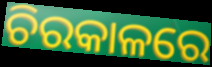
ଚିରକାଳରେ